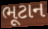
ભૂટાન